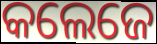
କଲେଜେ